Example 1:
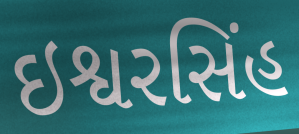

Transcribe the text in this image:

ઇશ્વરસિંહ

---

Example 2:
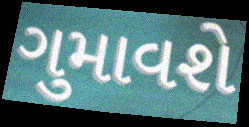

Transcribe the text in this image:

ગુમાવશે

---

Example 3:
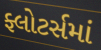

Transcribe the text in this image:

ફ્લોટર્સમાં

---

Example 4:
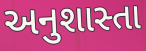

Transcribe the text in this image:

અનુશાસ્તા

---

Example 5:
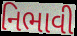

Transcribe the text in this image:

નિભાવી